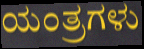
ಯಂತ್ರಗಳು